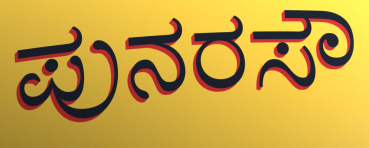
ಪುನರಸೌ